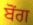
ਬੋਂਗ